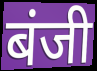
बंजी